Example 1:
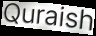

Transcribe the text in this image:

Quraish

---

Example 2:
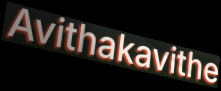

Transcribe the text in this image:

Avithakavithe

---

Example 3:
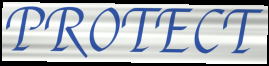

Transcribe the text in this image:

PROTECT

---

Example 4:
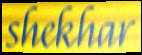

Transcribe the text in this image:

shekhar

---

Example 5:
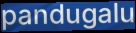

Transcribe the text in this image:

pandugalu